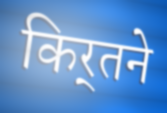
किर्तने